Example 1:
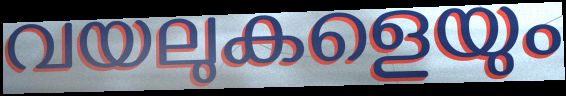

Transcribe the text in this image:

വയലുകളെയും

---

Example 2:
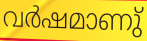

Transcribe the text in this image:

വർഷമാണു്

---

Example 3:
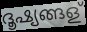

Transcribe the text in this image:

ദൂഷ്യങ്ങള്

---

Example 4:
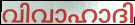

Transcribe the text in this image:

വിവാഹാദി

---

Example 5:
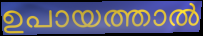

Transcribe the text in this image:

ഉപായത്താൽ